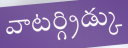
వాటర్గ్రిడ్కు